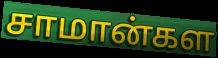
சாமான்கள